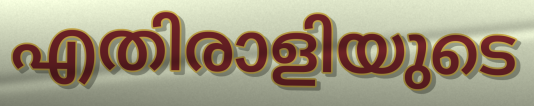
എതിരാളിയുടെ